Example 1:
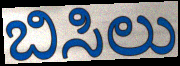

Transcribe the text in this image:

ಬಿಸಿಲು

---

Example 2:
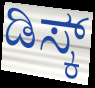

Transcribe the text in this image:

ಡಿಸ್ಕ್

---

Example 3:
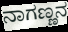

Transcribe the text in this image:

ನಾಗಣ್ಣನ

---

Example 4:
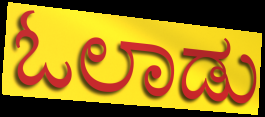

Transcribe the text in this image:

ಓಲಾಡು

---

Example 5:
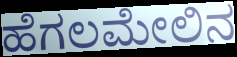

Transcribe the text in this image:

ಹೆಗಲಮೇಲಿನ